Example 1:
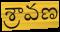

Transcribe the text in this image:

శ్రావణ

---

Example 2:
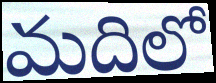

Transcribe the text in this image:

మదిలో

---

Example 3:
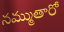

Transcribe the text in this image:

నమ్ముతారో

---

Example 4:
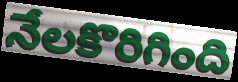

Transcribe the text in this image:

నేలకొరిగింది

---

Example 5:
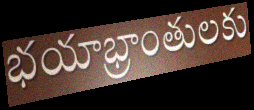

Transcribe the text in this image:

భయాభ్రాంతులకు